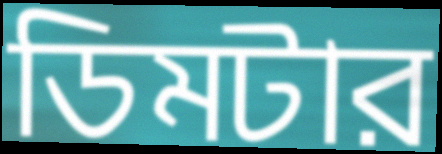
ডিমটার